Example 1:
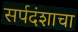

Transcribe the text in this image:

सर्पदंशाचा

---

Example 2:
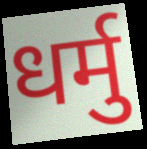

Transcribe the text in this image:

धर्मु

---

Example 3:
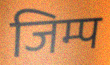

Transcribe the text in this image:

जिम्प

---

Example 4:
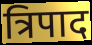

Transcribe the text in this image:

त्रिपाद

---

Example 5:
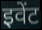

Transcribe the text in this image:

इवेंट